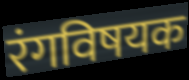
रंगविषयक